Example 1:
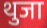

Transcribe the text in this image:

थुजा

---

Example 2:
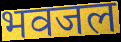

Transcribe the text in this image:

भवजल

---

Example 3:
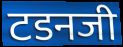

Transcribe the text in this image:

टडनजी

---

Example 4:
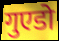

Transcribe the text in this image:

गुएडो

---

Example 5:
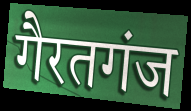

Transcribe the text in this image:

गैरतगंज